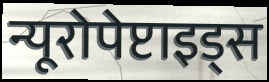
न्यूरोपेप्टाइड्स